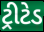
ટ્રીટેડ